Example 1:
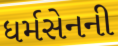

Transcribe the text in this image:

ધર્મસેનની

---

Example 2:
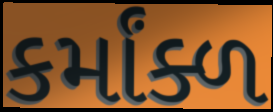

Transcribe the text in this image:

કર્માંક્ળ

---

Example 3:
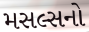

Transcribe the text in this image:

મસલ્સનો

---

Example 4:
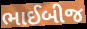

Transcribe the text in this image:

ભાઈબીજ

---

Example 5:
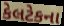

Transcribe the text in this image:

કેલટેકના